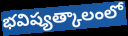
భవిష్యత్కాలంలో